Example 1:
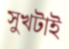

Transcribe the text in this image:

সুখটাই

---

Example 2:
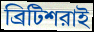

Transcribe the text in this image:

ব্রিটিশরাই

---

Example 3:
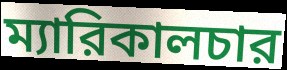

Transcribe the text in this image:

ম্যারিকালচার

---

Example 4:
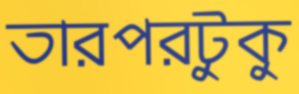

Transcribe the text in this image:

তারপরটুকু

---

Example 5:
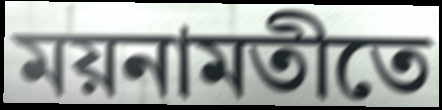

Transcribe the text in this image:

ময়নামতীতে